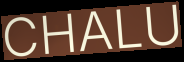
CHALU